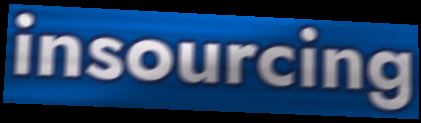
insourcing